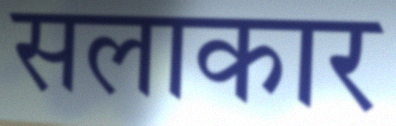
सलाकार